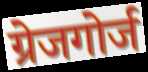
ग्रेजगोर्ज